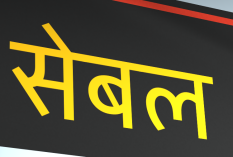
सेबल